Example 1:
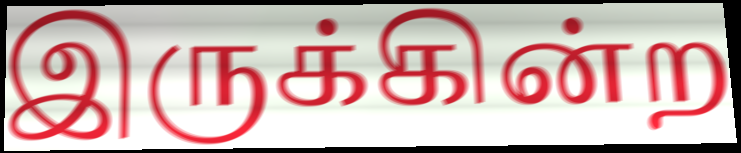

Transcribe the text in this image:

இருக்கின்ற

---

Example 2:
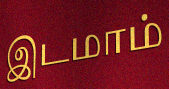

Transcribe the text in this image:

இடமாம்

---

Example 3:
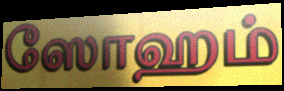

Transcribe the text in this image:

ஸோஹம்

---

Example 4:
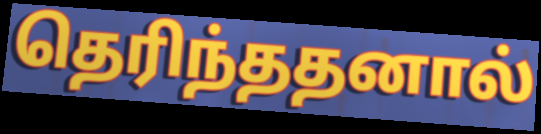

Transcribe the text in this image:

தெரிந்ததனால்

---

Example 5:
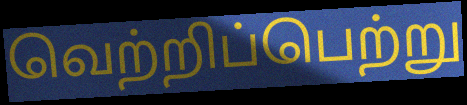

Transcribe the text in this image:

வெற்றிப்பெற்று